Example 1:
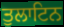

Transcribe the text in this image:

ਤੁਲਾਟਿਨ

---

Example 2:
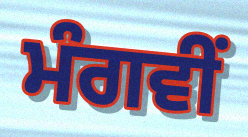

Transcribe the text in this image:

ਮੰਗਵੀਂ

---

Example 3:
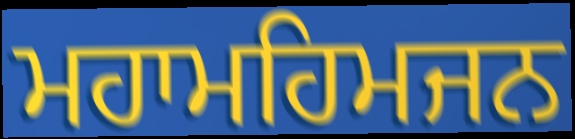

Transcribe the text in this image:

ਮਹਾਮਹਿਮਜਨ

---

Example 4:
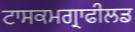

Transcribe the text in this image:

ਟਾਸਕਮਗ੍ਰਾਫੀਲਡ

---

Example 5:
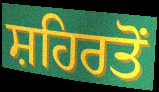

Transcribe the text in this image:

ਸ਼ਹਿਰਤੋਂ